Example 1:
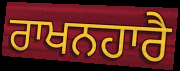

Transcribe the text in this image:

ਰਾਖਨਹਾਰੈ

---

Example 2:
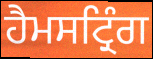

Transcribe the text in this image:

ਹੈਮਸਟ੍ਰਿੰਗ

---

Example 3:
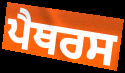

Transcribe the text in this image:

ਪੈਥਰਸ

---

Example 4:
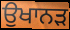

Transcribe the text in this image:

ਉਖਾਨੜ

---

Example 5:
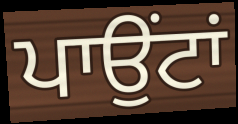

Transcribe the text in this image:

ਪਾਉਂਟਾਂ